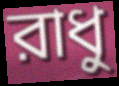
রাধু